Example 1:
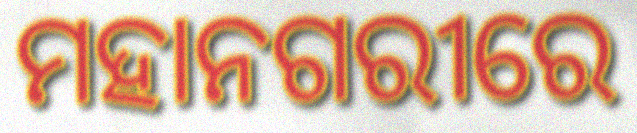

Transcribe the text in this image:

ମହାନଗରୀରେ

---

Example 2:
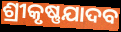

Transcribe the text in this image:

ଶ୍ରୀକୃଷ୍ଣଯାଦବ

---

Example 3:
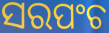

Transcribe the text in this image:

ସରପଂଚ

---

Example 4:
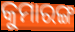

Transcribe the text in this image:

କୁମାରଙ୍ଗ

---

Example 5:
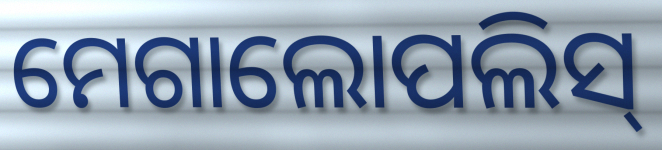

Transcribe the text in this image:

ମେଗାଲୋପଲିସ୍